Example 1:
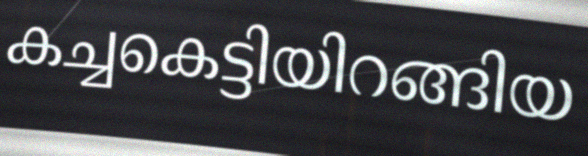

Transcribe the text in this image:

കച്ചകെട്ടിയിറങ്ങിയ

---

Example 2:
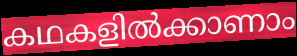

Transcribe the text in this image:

കഥകളിൽക്കാണാം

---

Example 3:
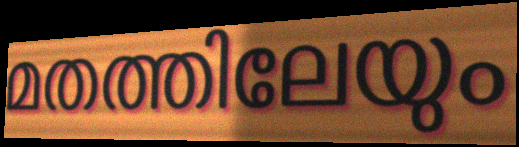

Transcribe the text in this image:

മതത്തിലേയും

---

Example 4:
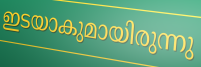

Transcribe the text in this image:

ഇടയാകുമായിരുന്നു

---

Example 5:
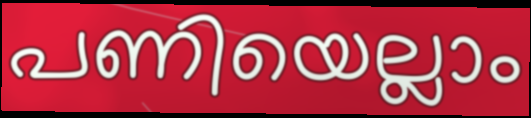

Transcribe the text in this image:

പണിയെല്ലാം